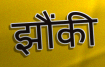
झौंकी